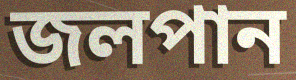
জলপান